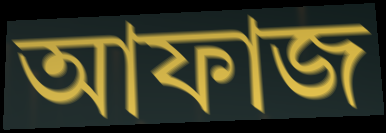
আফাজ